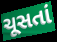
ચૂસતાં